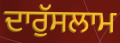
ਦਾਰੁੱਸਲਾਮ